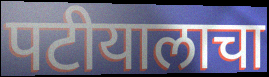
पटीयालाचा